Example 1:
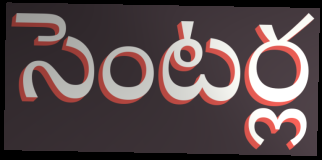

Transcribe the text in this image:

సెంటర్ల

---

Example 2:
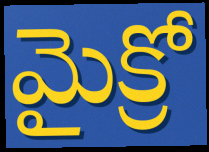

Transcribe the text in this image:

మైక్రో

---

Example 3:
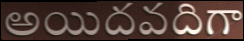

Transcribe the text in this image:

అయిదవదిగా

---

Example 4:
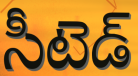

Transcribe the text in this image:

సీటెడ్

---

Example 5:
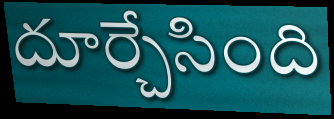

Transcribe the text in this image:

దూర్చేసింది